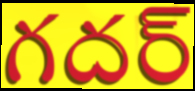
గదర్